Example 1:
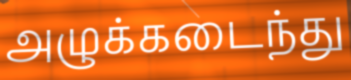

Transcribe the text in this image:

அழுக்கடைந்து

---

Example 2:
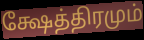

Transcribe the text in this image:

க்ஷேத்திரமும்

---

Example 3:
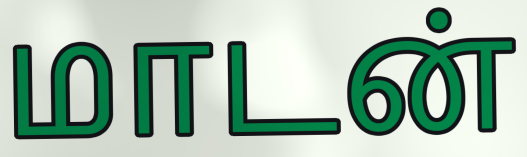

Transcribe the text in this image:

மாடன்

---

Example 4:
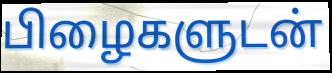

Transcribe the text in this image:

பிழைகளுடன்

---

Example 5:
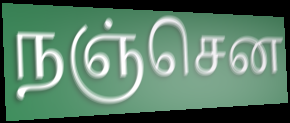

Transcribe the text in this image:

நஞ்சென